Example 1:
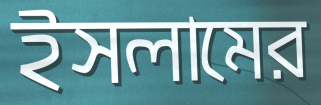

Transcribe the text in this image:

ইসলামের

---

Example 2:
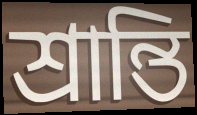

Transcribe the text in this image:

শ্রান্তি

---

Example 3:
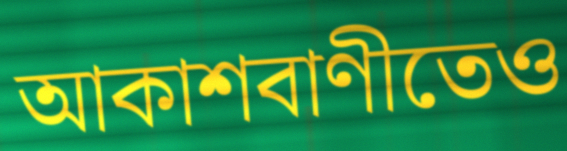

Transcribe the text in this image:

আকাশবাণীতেও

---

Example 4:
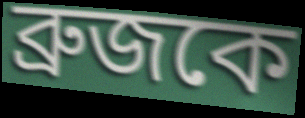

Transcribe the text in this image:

ব্রুজকে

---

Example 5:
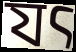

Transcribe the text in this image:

যৎ